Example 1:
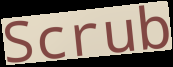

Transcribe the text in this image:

Scrub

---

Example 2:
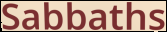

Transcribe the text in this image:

Sabbaths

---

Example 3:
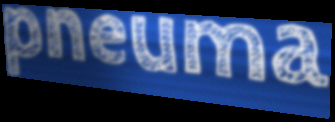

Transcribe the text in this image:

pneuma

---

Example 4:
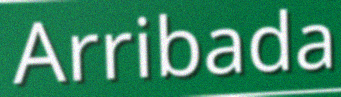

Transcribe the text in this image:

Arribada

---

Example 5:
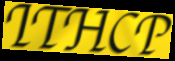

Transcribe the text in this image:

ITHCP